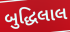
બુદ્ધિલાલ